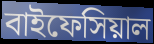
বাইফেসিয়াল